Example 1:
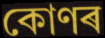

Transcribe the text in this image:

কোণৰ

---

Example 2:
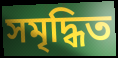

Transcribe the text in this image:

সমৃদ্ধিত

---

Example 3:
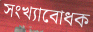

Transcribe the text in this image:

সংখ্যাবোধক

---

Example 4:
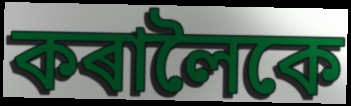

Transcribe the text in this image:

কৰালৈকে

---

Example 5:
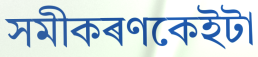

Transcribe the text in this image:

সমীকৰণকেইটা